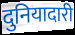
दुनियादारी